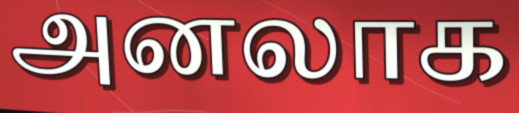
அனலாக